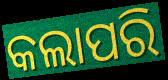
କଲାପରି